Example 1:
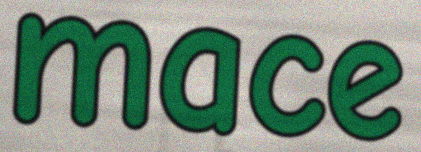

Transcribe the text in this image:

mace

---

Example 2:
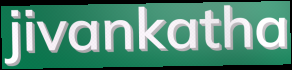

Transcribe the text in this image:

jivankatha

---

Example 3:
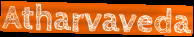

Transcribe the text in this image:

Atharvaveda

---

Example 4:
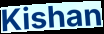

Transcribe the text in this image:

Kishan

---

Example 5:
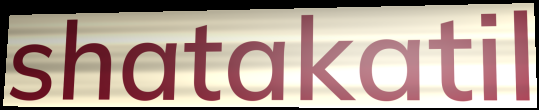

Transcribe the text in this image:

shatakatil